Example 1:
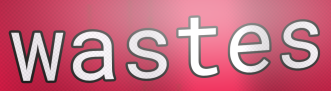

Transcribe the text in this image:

wastes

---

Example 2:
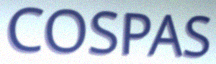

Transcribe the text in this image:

COSPAS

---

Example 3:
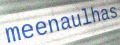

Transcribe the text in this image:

meenaulhas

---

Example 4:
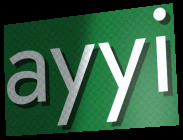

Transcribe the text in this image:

ayyi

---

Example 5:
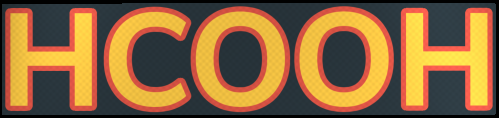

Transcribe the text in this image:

HCOOH